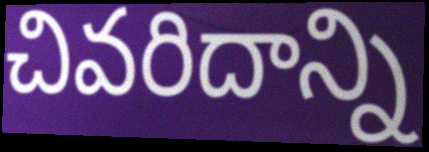
చివరిదాన్ని